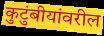
कुटुंबीयांवरील